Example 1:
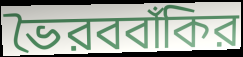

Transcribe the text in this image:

ভৈরববাঁকির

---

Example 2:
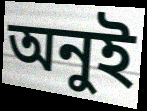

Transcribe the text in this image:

অনুই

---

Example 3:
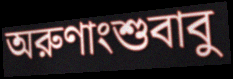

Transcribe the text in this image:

অরুণাংশুবাবু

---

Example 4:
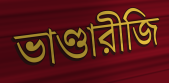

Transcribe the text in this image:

ভাণ্ডারীজি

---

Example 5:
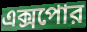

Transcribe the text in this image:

এক্সপোর